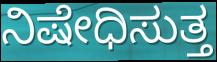
ನಿಷೇಧಿಸುತ್ತ